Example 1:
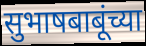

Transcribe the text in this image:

सुभाषबाबूंच्या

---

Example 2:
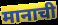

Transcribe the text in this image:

मानाची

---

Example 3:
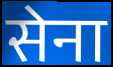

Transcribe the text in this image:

सेना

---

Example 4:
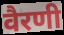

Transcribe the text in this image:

वैरणी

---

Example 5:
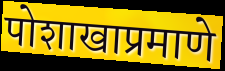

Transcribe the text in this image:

पोशाखाप्रमाणे